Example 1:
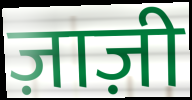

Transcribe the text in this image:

ज़ाज़ी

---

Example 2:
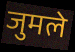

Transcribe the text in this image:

जुमले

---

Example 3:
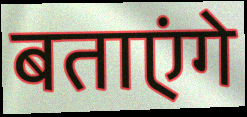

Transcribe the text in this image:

बताएंगे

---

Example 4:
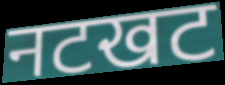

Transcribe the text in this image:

नटखट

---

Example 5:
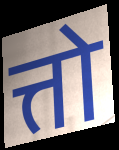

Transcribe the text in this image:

त्तो